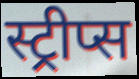
स्ट्रीप्स